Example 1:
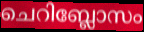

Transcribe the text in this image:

ചെറിബ്ലോസം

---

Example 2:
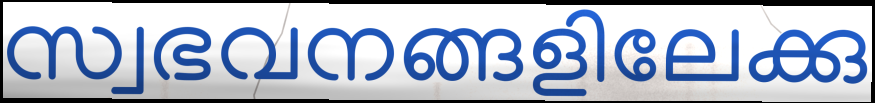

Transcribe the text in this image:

സ്വഭവനങ്ങളിലേക്കു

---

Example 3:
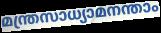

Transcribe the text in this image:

മന്ത്രസാധ്യാമനന്താം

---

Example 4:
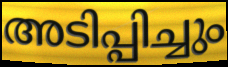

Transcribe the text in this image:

അടിപ്പിച്ചും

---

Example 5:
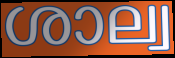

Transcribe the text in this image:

ശാല്വ